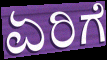
ಏರಿಗೆ